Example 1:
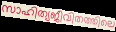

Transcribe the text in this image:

സാഹിത്യജീവിതത്തിലെ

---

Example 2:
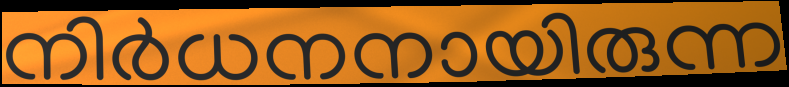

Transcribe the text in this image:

നിർധനനായിരുന്ന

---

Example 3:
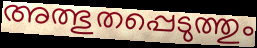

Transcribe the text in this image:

അത്ഭുതപ്പെടുത്തും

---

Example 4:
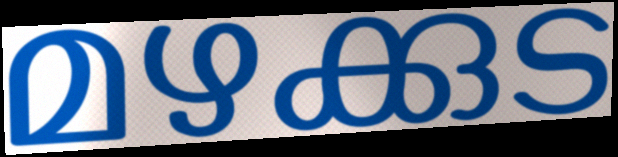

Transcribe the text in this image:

മഴക്കുട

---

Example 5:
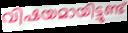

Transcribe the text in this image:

വിഷയമായിട്ടുണ്ട്